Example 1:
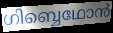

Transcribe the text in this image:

ഗിബ്ബെഥോൻ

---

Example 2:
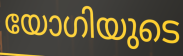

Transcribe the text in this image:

യോഗിയുടെ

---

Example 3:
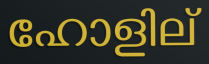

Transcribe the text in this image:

ഹോളില്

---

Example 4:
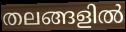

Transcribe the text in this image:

തലങ്ങളിൽ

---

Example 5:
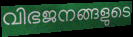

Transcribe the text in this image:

വിഭജനങ്ങളുടെ